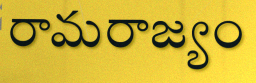
రామరాజ్యం